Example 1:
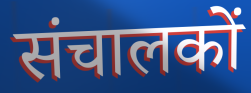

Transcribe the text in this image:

संचालकों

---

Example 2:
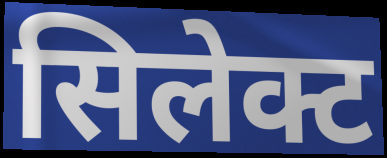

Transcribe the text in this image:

सिलेक्ट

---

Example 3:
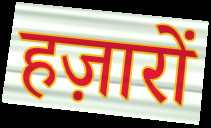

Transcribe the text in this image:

हज़ारों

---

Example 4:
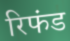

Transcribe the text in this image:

रिफंड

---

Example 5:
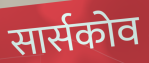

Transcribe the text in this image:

सार्सकोव